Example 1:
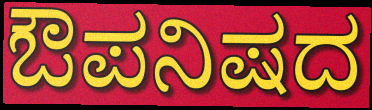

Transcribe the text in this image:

ಔಪನಿಷದ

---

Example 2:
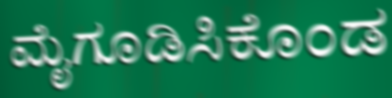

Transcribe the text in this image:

ಮೈಗೂಡಿಸಿಕೊಂಡ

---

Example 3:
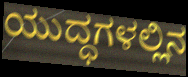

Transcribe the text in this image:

ಯುದ್ಧಗಳಲ್ಲಿನ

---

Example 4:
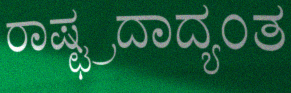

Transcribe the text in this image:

ರಾಷ್ಟ್ರದಾದ್ಯಂತ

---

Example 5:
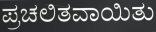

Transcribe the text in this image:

ಪ್ರಚಲಿತವಾಯಿತು